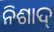
ନିଶାଦ୍